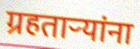
ग्रहताऱ्यांना